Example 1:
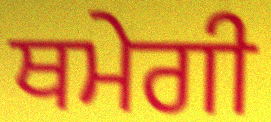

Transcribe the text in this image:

ਥਮੇਗੀ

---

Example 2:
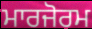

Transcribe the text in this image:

ਮਾਰਜੋਰਮ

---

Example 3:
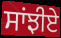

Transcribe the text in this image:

ਸਾਂਝੀਏ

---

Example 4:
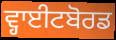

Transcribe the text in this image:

ਵ੍ਹਾਈਟਬੋਰਡ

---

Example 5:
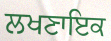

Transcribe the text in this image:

ਲਖਣਾਇਕ